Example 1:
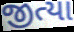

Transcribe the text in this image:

જીત્યા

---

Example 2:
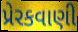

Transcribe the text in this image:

પ્રેરકવાણી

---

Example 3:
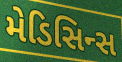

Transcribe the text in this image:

મેડિસિન્સ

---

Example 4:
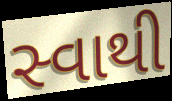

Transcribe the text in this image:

સ્વાથી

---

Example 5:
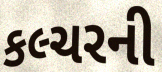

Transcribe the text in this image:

કલ્ચરની